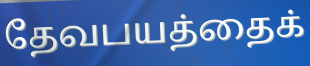
தேவபயத்தைக்